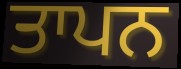
ਤਾਪਨ